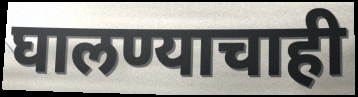
घालण्याचाही